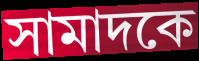
সামাদকে